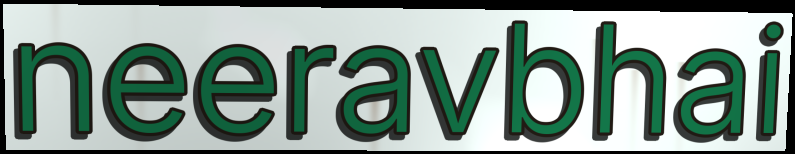
neeravbhai